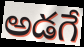
అడగే